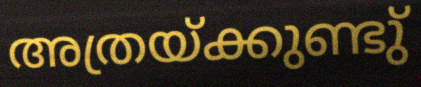
അത്രയ്ക്കുണ്ടു്